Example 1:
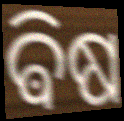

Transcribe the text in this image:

ଵିଷ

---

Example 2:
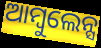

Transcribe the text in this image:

ଆମ୍ବୁଲେନ୍ସ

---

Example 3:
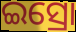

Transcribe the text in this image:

ଇସ୍ରୋ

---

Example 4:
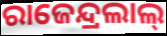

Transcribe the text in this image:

ରାଜେନ୍ଦ୍ରଲାଲ୍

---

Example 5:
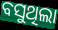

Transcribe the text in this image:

ବସୁଥିଲା